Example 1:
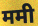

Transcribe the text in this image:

ममी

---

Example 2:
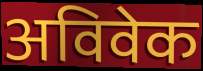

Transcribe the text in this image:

अविवेक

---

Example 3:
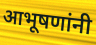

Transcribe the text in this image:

आभूषणांनी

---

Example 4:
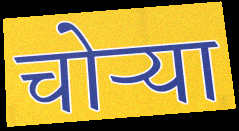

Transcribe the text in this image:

चोऱ्या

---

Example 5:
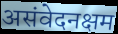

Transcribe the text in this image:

असंवेदनक्षम